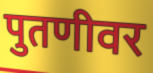
पुतणीवर